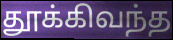
தூக்கிவந்த